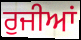
ਰੁਜੀਆਂ